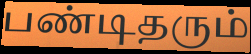
பண்டிதரும்